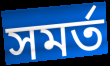
সমর্ত